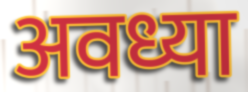
अवध्या